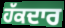
ਹੱਕਦਾਰ